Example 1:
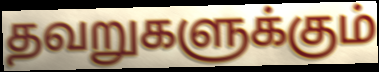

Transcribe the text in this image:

தவறுகளுக்கும்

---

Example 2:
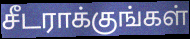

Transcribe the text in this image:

சீடராக்குங்கள்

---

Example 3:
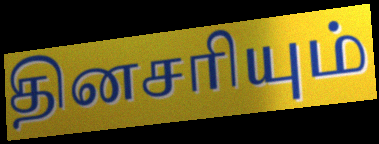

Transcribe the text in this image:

தினசரியும்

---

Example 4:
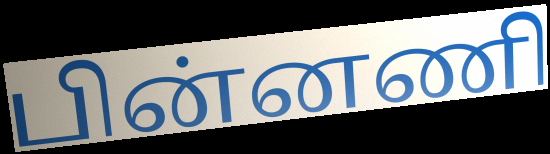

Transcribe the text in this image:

பின்னணி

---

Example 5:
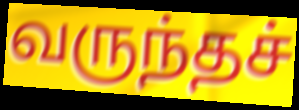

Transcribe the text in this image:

வருந்தச்